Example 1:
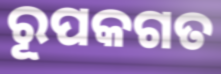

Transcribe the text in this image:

ରୂପକଗତ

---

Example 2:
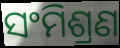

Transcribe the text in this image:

ସଂମିଶ୍ରଣ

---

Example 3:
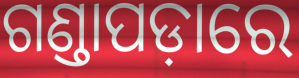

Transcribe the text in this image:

ଗଣ୍ଡାପଡ଼ାରେ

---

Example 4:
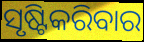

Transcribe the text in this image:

ସୃଷ୍ଟିକରିବାର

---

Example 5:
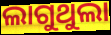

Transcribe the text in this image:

ଲାଗୁଥୁଲା